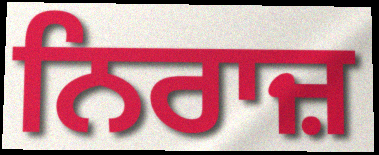
ਨਿਰਾਜ਼